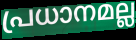
പ്രധാനമല്ല